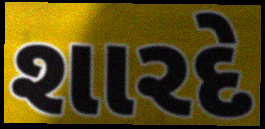
શારદે